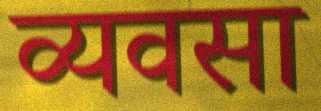
व्यवसा